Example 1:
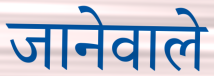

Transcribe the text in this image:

जानेवाले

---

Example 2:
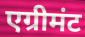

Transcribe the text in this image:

एग्रीमंट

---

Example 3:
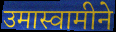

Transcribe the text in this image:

उमास्वामीने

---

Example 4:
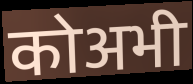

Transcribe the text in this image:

कोअभी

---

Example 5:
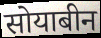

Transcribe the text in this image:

सोयाबीन